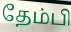
தேம்பி